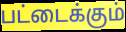
பட்டைக்கும்